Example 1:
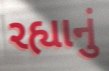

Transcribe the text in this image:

રહ્યાનું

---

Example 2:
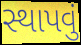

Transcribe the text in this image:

સ્થાપવું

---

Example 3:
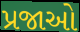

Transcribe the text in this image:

પ્રજાઓ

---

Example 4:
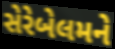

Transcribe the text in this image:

સેરેબેલમને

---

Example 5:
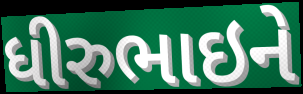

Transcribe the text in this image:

ધીરુભાઇને